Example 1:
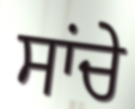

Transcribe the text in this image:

ਸਾਂਚੇ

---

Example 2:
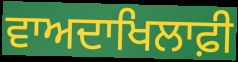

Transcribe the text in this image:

ਵਾਅਦਾਖਿਲਾਫ਼ੀ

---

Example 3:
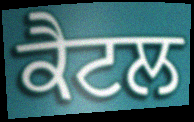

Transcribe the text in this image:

ਕੈਟਲ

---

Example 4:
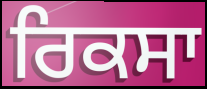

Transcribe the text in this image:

ਰਿਕਸਾ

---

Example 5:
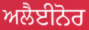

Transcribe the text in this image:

ਅਲੈਈਨੋਰ